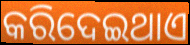
କରିଦେଇଥାଏ